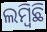
ଲମ୍ବିଛି